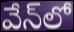
వేన్‌లో